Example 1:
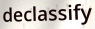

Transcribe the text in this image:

declassify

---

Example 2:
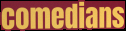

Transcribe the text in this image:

comedians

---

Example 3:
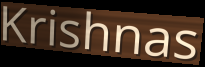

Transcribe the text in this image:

Krishnas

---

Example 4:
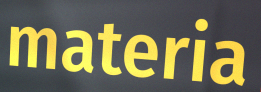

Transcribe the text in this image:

materia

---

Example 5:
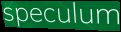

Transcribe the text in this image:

speculum